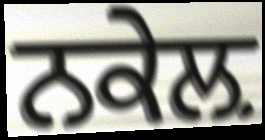
ਨਕੇਲ਼